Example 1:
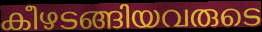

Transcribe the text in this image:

കീഴടങ്ങിയവരുടെ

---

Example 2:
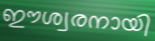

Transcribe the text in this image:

ഈശ്വരനായി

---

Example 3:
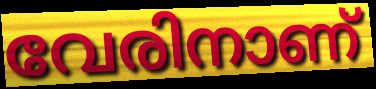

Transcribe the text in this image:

വേരിനാണ്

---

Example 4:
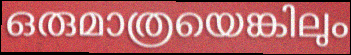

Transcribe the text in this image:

ഒരുമാത്രയെങ്കിലും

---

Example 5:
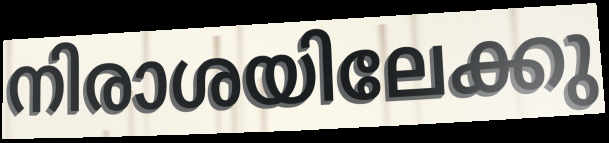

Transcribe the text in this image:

നിരാശയിലേക്കു